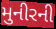
મુનીરની